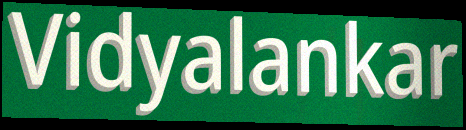
Vidyalankar